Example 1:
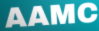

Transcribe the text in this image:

AAMC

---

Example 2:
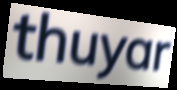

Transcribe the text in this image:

thuyar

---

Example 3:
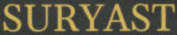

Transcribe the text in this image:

SURYAST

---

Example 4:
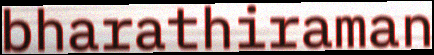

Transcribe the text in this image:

bharathiraman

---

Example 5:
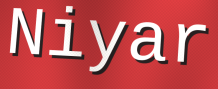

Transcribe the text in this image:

Niyar